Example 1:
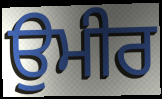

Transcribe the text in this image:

ਉਮੀਰ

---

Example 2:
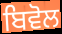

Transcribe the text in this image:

ਬਿਵੋਲ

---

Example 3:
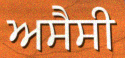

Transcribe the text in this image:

ਅਸੈਸੀ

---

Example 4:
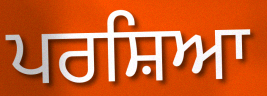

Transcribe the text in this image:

ਪਰਸ਼ਿਆ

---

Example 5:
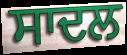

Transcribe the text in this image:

ਸਾਦਲ